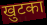
खुटका